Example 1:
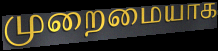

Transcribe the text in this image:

முறைமையாக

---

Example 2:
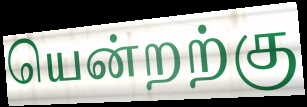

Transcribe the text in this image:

யென்றற்கு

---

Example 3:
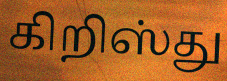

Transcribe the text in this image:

கிறிஸ்து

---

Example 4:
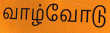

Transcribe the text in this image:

வாழ்வோடு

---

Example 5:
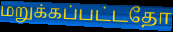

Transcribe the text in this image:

மறுக்கப்பட்டதோ